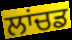
ਲਾਂਚਡ